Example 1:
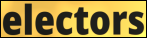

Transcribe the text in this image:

electors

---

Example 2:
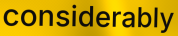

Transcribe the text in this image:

considerably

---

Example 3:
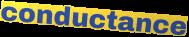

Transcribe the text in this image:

conductance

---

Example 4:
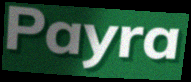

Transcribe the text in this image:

Payra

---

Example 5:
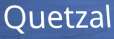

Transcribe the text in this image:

Quetzal